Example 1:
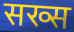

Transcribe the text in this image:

सख्स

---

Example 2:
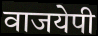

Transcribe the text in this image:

वाजयेपी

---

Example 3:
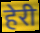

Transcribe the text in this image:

हेरी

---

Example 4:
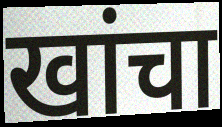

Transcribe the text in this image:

खांचा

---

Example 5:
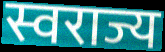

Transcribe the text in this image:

स्वराज्य